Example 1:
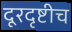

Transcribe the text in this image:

दूरदृष्टीच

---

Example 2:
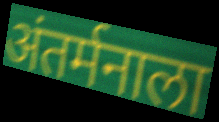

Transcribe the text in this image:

अंतर्मनाला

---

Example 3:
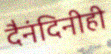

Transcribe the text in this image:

दैनंदिनीही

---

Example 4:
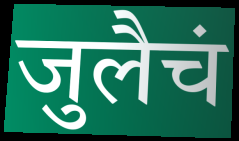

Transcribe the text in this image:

जुलैचं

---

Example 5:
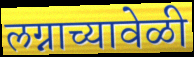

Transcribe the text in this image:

लग्नाच्यावेळी